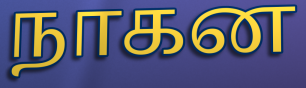
நாகன